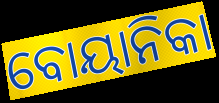
ବୋୟାନିକା